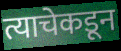
त्याचेकडून